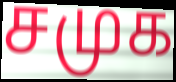
சமுக